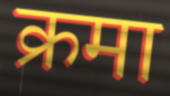
क्रमा